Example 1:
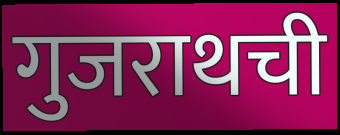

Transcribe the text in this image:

गुजराथची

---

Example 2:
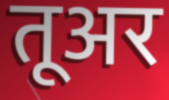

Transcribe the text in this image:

तूअर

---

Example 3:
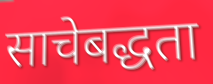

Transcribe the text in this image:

साचेबद्धता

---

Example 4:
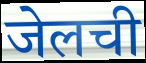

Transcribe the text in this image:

जेलची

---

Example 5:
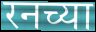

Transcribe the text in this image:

रनच्या